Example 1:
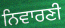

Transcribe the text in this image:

ਨਿਵਾਰਣੀ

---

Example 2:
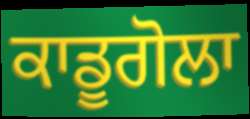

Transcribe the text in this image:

ਕਾਡੂਗੋਲਾ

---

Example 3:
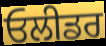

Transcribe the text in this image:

ਓਲੀਡਰ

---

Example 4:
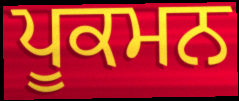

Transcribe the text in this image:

ਪੂਕਮਨ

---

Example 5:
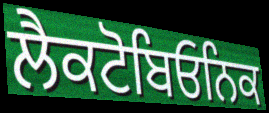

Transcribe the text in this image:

ਲੈਕਟੋਬਿਓਨਿਕ